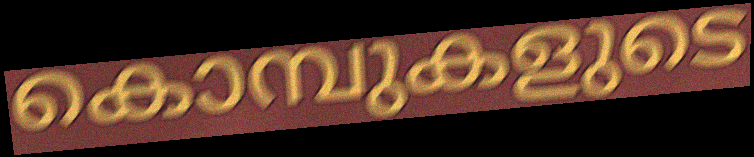
കൊമ്പുകളുടെ